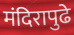
मंदिरापुढे